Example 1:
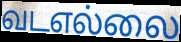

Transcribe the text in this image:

வடஎல்லை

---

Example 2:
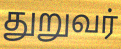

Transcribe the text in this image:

துறுவர்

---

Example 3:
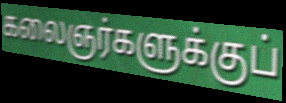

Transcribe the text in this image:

கலைஞர்களுக்குப்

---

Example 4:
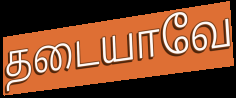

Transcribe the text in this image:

தடையாவே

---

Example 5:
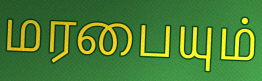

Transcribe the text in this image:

மரபையும்